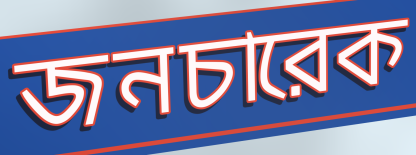
জনচারেক